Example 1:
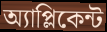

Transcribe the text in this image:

অ্যাপ্লিকেন্ট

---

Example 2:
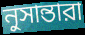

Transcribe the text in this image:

নুসান্তারা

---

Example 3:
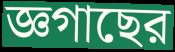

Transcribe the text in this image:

জ্ঞগাছের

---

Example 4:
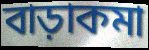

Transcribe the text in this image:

বাড়াকমা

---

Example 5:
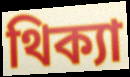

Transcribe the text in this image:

থিক্যা